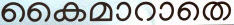
കൈമാറാതെ